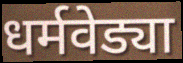
धर्मवेड्या